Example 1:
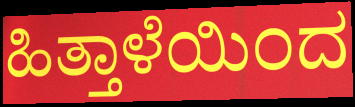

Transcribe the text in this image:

ಹಿತ್ತಾಳೆಯಿಂದ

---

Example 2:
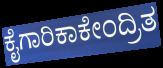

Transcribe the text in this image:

ಕೈಗಾರಿಕಾಕೇಂದ್ರಿತ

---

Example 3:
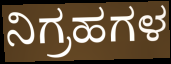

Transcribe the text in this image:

ನಿಗ್ರಹಗಳ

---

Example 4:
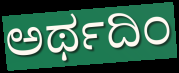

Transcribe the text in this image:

ಅರ್ಥದಿಂ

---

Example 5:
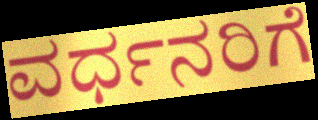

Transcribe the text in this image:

ವರ್ಧನರಿಗೆ